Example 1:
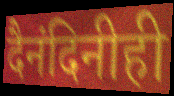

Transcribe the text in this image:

दैनंदिनीही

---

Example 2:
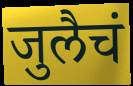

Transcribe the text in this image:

जुलैचं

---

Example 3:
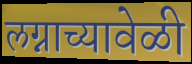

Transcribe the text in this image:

लग्नाच्यावेळी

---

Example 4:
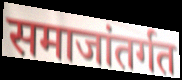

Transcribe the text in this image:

समाजांतर्गत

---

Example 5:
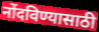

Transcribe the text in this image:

नोंदविण्यासाठी